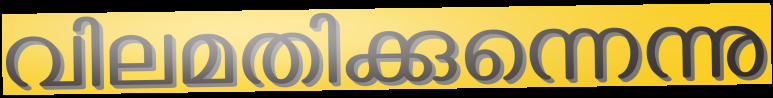
വിലമതിക്കുന്നെന്നു